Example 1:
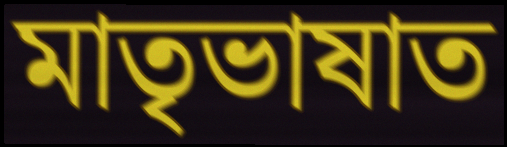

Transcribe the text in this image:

মাতৃভাষাত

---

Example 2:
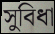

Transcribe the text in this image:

সুবিধা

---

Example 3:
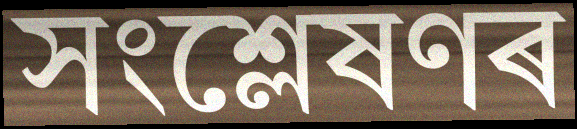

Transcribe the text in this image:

সংশ্লেষণৰ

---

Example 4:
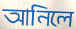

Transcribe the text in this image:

আনিলে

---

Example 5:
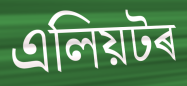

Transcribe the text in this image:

এলিয়টৰ